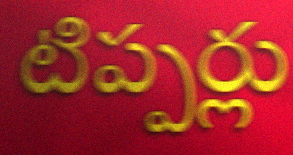
టిప్పర్లు